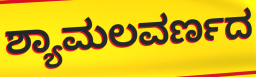
ಶ್ಯಾಮಲವರ್ಣದ